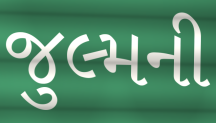
જુલ્મની